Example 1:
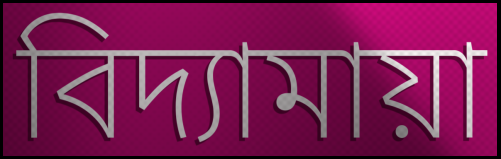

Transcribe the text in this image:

বিদ্যামায়া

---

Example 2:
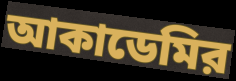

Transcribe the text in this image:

আকাডেমির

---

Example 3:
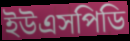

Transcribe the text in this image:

ইউএসপিডি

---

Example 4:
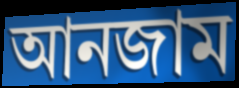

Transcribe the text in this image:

আনজাম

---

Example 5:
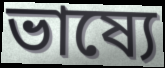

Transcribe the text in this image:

ভাষ্যে